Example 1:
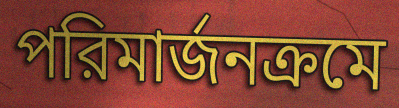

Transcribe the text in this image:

পরিমার্জনক্রমে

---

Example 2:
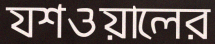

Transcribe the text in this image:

যশওয়ালের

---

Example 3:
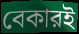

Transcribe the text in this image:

বেকারই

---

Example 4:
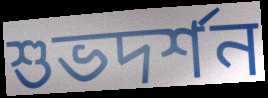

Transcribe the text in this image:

শুভদর্শন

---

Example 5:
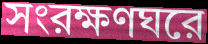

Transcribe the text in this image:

সংরক্ষণঘরে